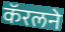
कॅरलने